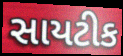
સાયટીક